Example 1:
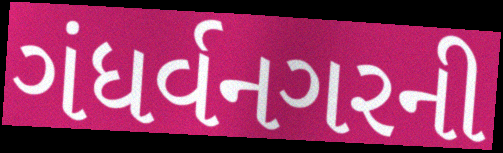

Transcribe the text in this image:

ગંધર્વનગરની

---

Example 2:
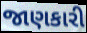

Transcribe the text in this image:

જાણકારી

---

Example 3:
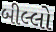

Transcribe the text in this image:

બીલ્લો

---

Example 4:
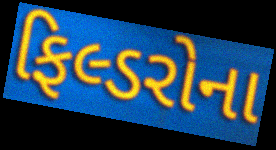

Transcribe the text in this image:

ફિલ્ડરોના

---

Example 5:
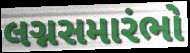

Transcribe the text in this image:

લગ્નસમારંભો